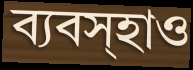
ব্যবস্হাও